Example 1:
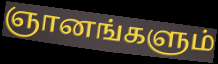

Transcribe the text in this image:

ஞானங்களும்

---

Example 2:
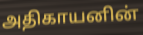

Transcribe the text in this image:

அதிகாயனின்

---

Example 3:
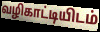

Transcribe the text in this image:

வழிகாட்டியிடம்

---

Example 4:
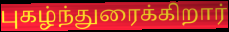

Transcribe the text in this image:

புகழ்ந்துரைக்கிறார்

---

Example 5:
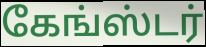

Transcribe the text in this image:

கேங்ஸ்டர்